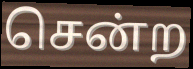
சென்ற